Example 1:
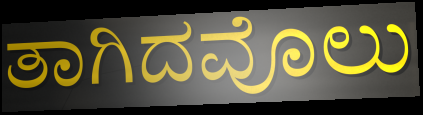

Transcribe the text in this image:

ತಾಗಿದವೊಲು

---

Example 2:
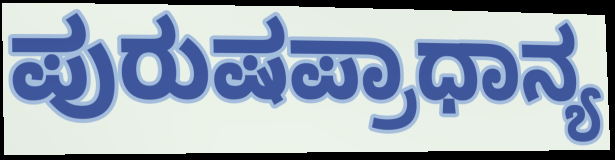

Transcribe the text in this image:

ಪುರುಷಪ್ರಾಧಾನ್ಯ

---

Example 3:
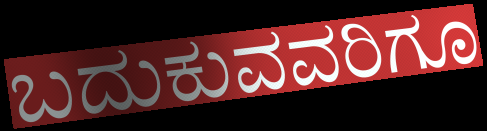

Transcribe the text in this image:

ಬದುಕುವವರಿಗೂ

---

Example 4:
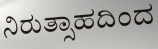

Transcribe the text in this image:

ನಿರುತ್ಸಾಹದಿಂದ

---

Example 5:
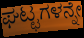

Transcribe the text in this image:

ಘಟ್ಟಗಳನ್ನೇ